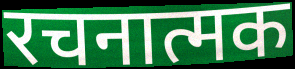
रचनात्मक